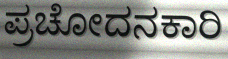
ಪ್ರಚೋದನಕಾರಿ